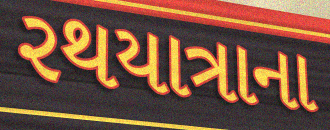
રથયાત્રાના